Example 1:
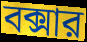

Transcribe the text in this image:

বক্সার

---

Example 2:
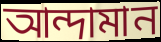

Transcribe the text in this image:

আন্দামান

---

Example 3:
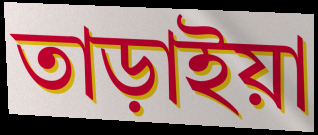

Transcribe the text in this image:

তাড়াইয়া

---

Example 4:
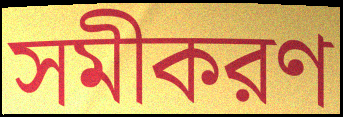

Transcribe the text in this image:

সমীকরণ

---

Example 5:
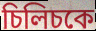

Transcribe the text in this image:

চিলিচকে